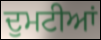
ਦੁਮਟੀਆਂ